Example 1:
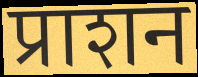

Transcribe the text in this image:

प्राशन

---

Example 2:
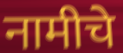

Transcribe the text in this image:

नामीचे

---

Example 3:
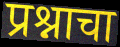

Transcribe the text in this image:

प्रश्नाचा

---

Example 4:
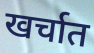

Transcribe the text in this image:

खर्चात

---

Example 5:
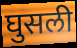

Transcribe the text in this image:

घुसली